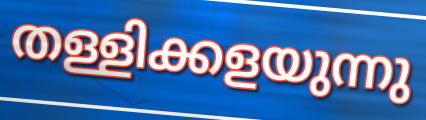
തള്ളിക്കളയുന്നു